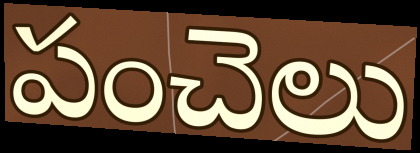
పంచెలు